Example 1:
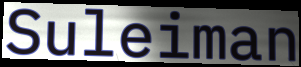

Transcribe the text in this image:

Suleiman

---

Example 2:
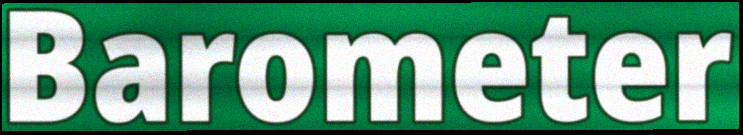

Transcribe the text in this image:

Barometer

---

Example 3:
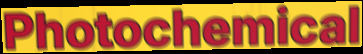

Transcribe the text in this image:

Photochemical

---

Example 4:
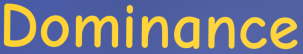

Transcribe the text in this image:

Dominance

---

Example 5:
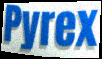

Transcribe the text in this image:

Pyrex